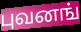
புவனங்